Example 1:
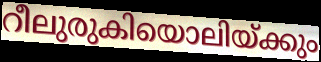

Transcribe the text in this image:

റീലുരുകിയൊലിയ്ക്കും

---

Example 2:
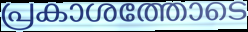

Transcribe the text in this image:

പ്രകാശത്തോടെ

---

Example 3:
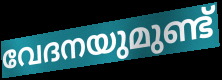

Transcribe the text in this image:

വേദനയുമുണ്ട്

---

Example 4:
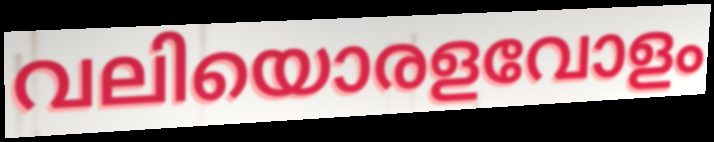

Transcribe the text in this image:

വലിയൊരളവോളം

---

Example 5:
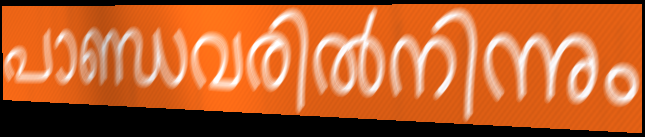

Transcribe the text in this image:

പാണ്ഡവരിൽനിന്നും